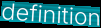
definition